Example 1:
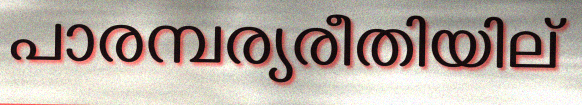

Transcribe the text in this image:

പാരമ്പര്യരീതിയില്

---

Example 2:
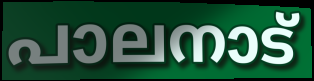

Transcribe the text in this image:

പാലനാട്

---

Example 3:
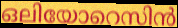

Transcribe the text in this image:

ഒലിയോറെസിൻ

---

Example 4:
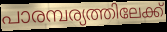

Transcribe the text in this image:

പാരമ്പര്യത്തിലേക്ക്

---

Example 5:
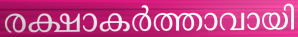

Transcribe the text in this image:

രക്ഷാകർത്താവായി